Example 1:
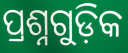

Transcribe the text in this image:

ପ୍ରଶ୍ନଗୁଡ଼ିକ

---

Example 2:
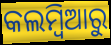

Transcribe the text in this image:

କଲମ୍ବିଆରୁ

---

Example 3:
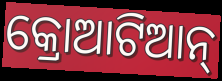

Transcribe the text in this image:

କ୍ରୋଆଟିଆନ୍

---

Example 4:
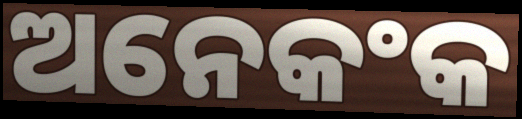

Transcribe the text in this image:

ଅନେକଂକ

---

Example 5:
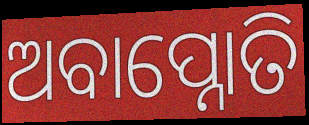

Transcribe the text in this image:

ଅବାପ୍ନୋତି